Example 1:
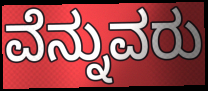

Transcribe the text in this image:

ವೆನ್ನುವರು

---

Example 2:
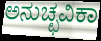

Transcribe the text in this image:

ಅನುಚ್ಛವಿಕಾ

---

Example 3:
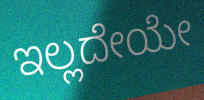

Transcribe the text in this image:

ಇಲ್ಲದೇಯೇ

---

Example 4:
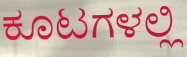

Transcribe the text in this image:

ಕೂಟಗಳಲ್ಲಿ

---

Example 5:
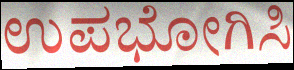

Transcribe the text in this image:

ಉಪಭೋಗಿಸಿ